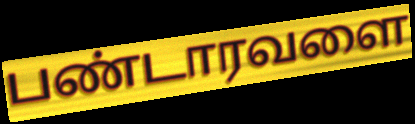
பண்டாரவளை